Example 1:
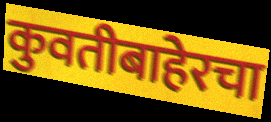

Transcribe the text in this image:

कुवतीबाहेरचा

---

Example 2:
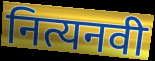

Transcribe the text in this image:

नित्यनवी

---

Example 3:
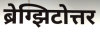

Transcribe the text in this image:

ब्रेग्झिटोत्तर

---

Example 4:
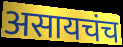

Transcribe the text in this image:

असायचंच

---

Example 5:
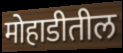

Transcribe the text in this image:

मोहाडीतील